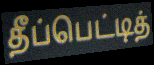
தீப்பெட்டித்